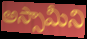
అస్సామీని